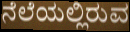
ನೆಲೆಯಲ್ಲಿರುವ